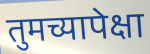
तुमच्यापेक्षा